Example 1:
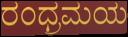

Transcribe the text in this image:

ರಂಧ್ರಮಯ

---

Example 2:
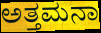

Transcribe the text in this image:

ಅತ್ತಮನಾ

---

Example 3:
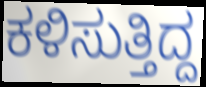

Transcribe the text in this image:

ಕಳಿಸುತ್ತಿದ್ದ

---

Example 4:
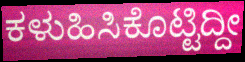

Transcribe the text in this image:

ಕಳುಹಿಸಿಕೊಟ್ಟಿದ್ದೀ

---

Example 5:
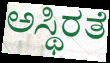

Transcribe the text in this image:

ಅಸ್ಥಿರತೆ